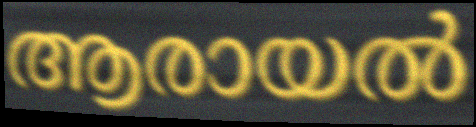
ആരായൽ